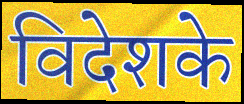
विदेशके